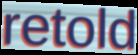
retold